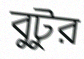
বুটুর